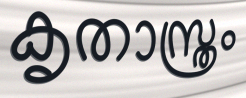
കൃതാസ്ത്രം